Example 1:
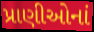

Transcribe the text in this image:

પ્રાણીઓનાં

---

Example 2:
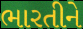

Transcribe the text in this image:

ભારતીને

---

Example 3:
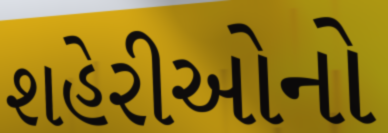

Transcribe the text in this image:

શહેરીઓનો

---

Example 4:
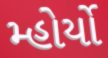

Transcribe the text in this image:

મ્હોર્યો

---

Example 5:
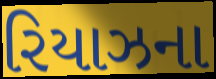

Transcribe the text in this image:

રિયાઝના